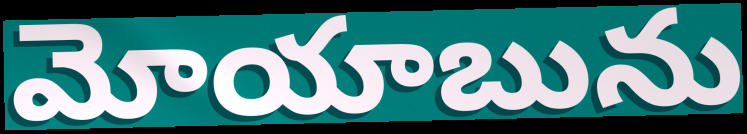
మోయాబును